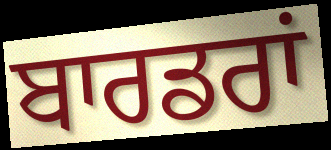
ਬਾਰਡਰਾਂ